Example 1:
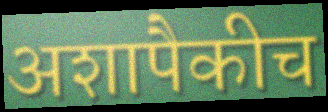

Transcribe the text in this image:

अशापैकीच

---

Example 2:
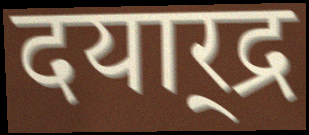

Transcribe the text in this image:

दयार्द्र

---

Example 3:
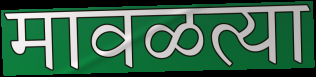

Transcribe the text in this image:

मावळत्या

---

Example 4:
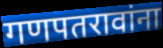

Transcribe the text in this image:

गणपतरावांना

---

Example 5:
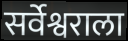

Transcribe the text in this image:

सर्वेश्वराला